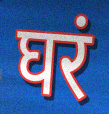
घरं